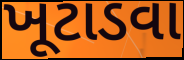
ખૂટાડવા